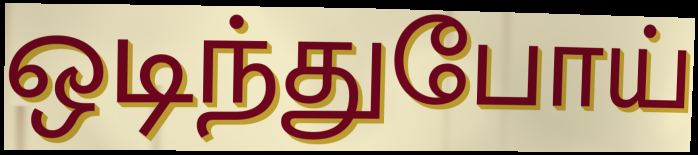
ஒடிந்துபோய்